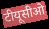
टीयूसीओ